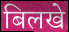
बिलखे